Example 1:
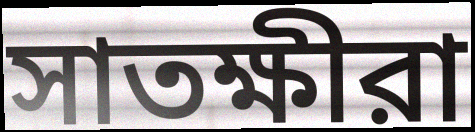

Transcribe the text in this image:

সাতক্ষীরা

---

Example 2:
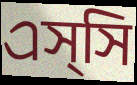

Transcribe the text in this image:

এস্‌সি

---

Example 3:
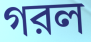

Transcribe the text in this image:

গরল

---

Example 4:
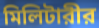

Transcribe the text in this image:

মিলিটারীর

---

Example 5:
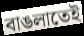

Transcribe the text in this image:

বাঙলাতেই